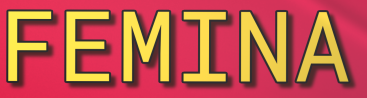
FEMINA